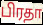
பிரதா